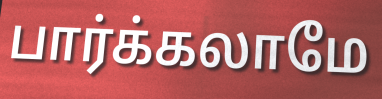
பார்க்கலாமே